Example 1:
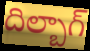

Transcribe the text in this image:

దిల్బాగ్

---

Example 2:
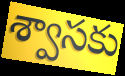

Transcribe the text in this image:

శ్వాసకు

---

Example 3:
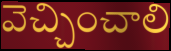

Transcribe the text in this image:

వెచ్చించాలి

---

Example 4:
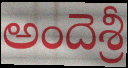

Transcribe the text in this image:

అందెశ్రీ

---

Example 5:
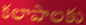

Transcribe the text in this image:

కలాపాలకు